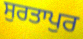
ਸੁਰਤਾਪੁਰ